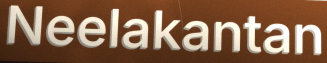
Neelakantan